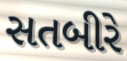
સતબીરે